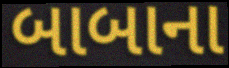
બાબાના